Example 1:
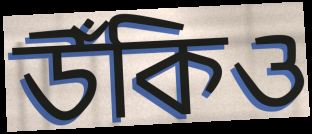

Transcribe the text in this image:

উঁকিও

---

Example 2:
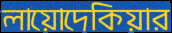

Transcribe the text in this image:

লায়োদেকিয়ার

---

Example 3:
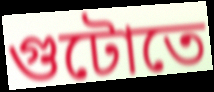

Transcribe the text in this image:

গুটোতে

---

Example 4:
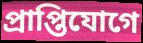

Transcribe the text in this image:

প্রাপ্তিযোগে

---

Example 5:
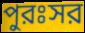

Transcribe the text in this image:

পুরঃসর